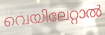
വെയിലേറ്റാൽ